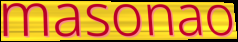
masonao